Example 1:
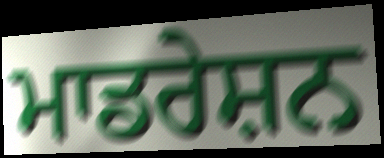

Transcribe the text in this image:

ਮਾਡਰੇਸ਼ਨ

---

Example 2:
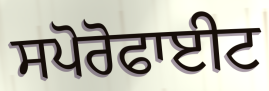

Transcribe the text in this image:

ਸਪੋਰੋਫਾਈਟ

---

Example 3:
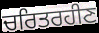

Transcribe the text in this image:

ਚਰਿਤਰਹੀਣ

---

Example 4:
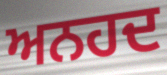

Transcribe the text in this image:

ਅਨਹਦ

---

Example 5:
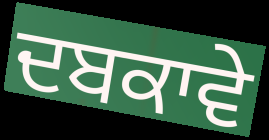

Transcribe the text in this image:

ਦਬਕਾਵੇ